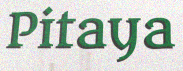
Pitaya